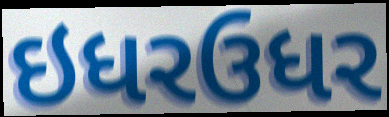
ઇધરઉધર